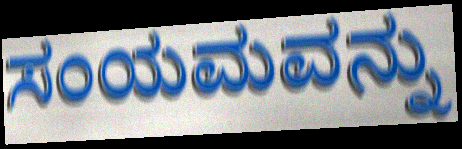
ಸಂಯಮವನ್ನು